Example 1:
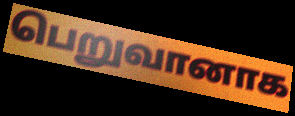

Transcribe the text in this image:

பெறுவானாக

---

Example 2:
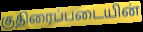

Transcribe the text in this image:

குதிரைப்படையின்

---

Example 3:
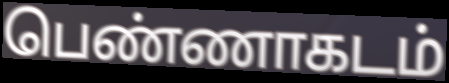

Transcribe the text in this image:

பெண்ணாகடம்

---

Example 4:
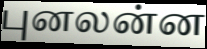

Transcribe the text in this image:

புனலன்ன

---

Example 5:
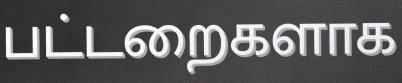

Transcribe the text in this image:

பட்டறைகளாக